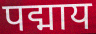
पद्माय